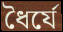
ধৈর্যে